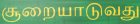
சூறையாடுவது